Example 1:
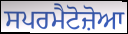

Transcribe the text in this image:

ਸਪਰਮੈਟੋਜ਼ੋਆ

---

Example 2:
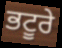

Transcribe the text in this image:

ਭਟੂਰੇ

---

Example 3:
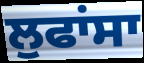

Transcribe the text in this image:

ਲੁਫਾਂਸਾ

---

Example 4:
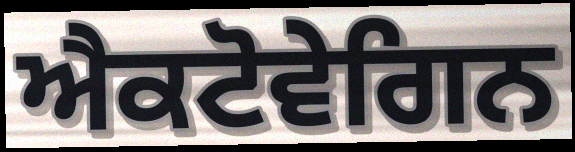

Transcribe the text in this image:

ਐਕਟੋਵੇਗਿਨ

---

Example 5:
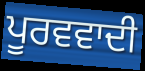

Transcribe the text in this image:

ਪੂਰਵਵਾਦੀ